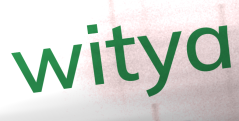
witya